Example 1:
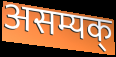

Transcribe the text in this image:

असम्यक्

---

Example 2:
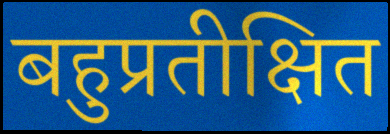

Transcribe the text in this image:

बहुप्रतीक्षित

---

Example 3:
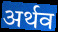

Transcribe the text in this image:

अर्थव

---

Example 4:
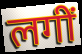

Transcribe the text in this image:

लगीं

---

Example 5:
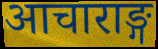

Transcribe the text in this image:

आचाराङ्ग